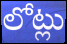
లోట్లు